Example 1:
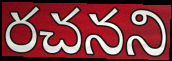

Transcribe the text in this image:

రచనని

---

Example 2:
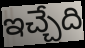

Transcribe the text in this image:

ఇచ్చేది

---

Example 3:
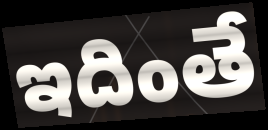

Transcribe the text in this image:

ఇదింతే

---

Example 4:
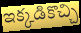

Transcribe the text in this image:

ఇక్కడికొచ్చి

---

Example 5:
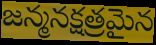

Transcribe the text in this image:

జన్మనక్షత్రమైన